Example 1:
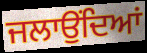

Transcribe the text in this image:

ਜਲਾਉਂਦਿਆਂ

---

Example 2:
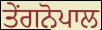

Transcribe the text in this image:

ਤੇਂਗਨੋਪਾਲ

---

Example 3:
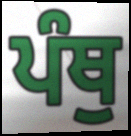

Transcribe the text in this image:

ਪੰਥੁ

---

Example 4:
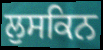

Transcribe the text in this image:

ਲੁਸਕਿਨ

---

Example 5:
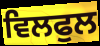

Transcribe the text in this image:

ਵਿਲਫੁਲ